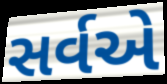
સર્વએ